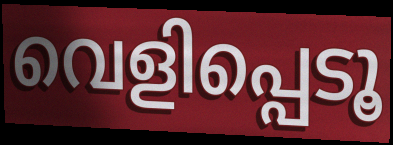
വെളിപ്പെടൂ